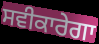
ਸਵੀਕਾਰੇਗਾ